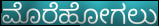
ಮೊರೆಹೋಗಲು